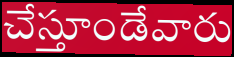
చేస్తూండేవారు